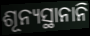
ଶୂନ୍ୟସ୍ଥାନାନି